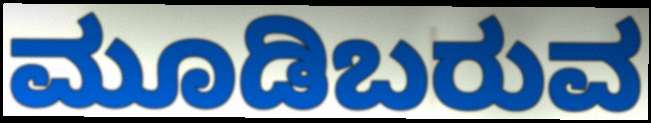
ಮೂಡಿಬರುವ